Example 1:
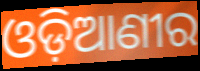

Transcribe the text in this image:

ଓଡ଼ିଆଣୀର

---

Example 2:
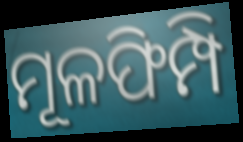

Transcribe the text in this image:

ମୂଳଫିମ୍ପି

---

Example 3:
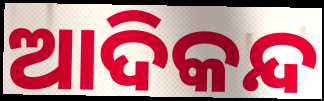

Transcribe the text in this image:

ଆଦିକନ୍ଦ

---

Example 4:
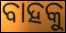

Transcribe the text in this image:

ବାହକୁ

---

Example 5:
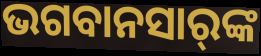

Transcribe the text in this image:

ଭଗବାନସାର୍‌ଙ୍କ